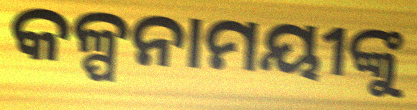
କଳ୍ପନାମୟୀଙ୍କୁ